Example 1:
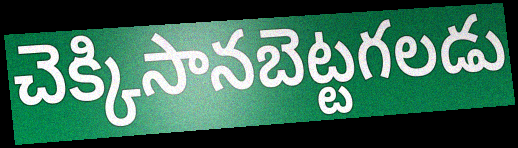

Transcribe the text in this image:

చెక్కిసానబెట్టగలడు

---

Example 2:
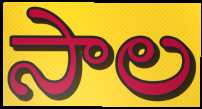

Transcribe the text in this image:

సాల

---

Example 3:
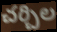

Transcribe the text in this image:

చర్చిల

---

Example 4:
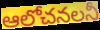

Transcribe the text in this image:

ఆలోచనలనీ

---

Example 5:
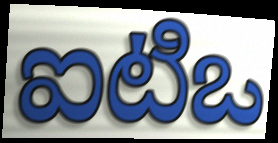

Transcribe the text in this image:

ఐటిఒ